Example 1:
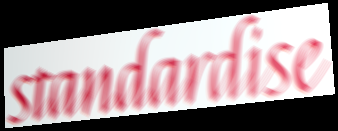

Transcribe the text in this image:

standardise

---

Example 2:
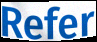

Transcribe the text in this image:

Refer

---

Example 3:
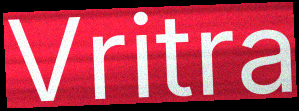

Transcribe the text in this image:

Vritra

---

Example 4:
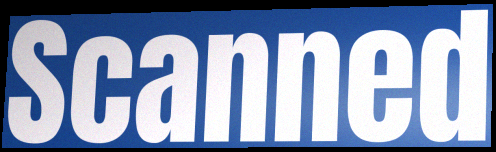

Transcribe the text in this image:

Scanned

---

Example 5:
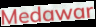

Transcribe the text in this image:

Medawar